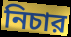
নিচার